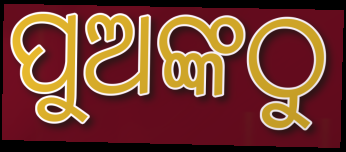
ପୁଅଙ୍କଠୁ